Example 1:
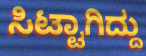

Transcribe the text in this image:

ಸಿಟ್ಟಾಗಿದ್ದು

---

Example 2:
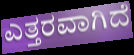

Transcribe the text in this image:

ಎತ್ತರವಾಗಿದೆ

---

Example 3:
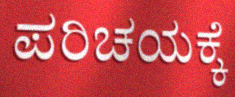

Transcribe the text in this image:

ಪರಿಚಯಕ್ಕೆ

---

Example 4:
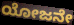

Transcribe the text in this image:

ಯೋಜನೇ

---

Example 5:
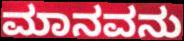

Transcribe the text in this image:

ಮಾನವನು